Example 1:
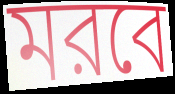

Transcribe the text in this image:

মরবে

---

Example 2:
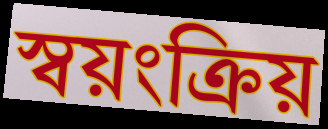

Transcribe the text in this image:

স্বয়ংক্রিয়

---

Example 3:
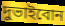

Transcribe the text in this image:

দুভাইবোন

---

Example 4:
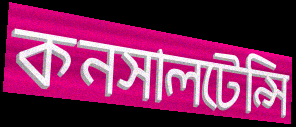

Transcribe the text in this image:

কনসালটেন্সি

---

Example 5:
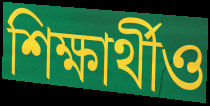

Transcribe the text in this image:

শিক্ষার্থীও